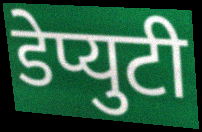
डेप्युटी